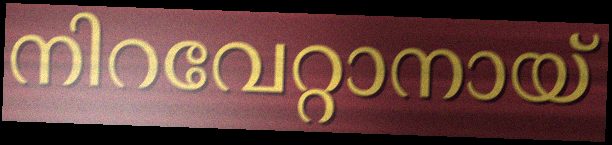
നിറവേറ്റാനായ്